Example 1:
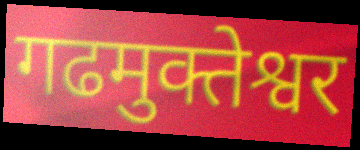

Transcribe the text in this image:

गढमुक्तेश्वर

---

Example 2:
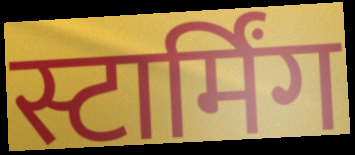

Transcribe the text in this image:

स्टार्मिंग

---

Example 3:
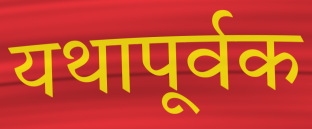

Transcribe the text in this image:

यथापूर्वक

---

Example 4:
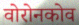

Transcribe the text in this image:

वोरोनकोव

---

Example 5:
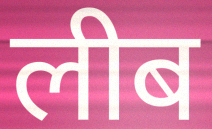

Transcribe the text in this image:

लीब